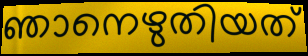
ഞാനെഴുതിയത്